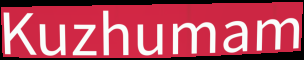
Kuzhumam